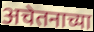
अचेतनाच्या